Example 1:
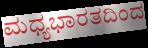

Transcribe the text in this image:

ಮಧ್ಯಭಾರತದಿಂದ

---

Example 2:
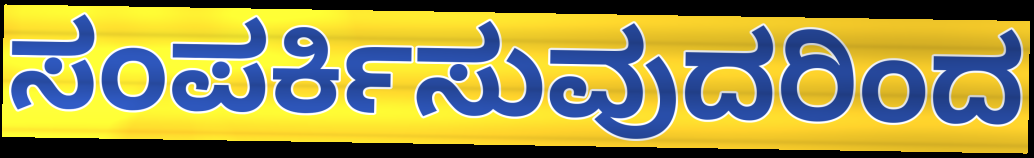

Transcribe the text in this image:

ಸಂಪರ್ಕಿಸುವುದರಿಂದ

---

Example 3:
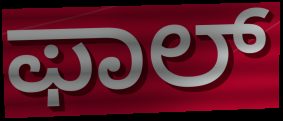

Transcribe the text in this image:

ಫಾಲ್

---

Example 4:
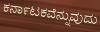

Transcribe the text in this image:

ಕರ್ನಾಟಕವೆನ್ನುವುದು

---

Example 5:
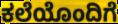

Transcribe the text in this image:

ಕಲೆಯೊಂದಿಗೆ